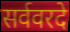
सर्ववरदे